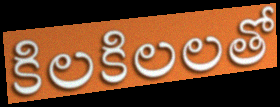
కిలకిలలతో